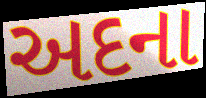
અદના